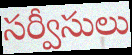
సర్వీసులు